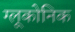
ग्लूकोनिक